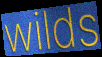
wilds